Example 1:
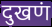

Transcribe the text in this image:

दुखणं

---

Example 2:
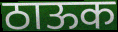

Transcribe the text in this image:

ठाऊक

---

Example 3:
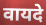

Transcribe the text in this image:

वायदे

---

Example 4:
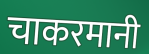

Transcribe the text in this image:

चाकरमानी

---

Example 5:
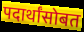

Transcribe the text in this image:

पदार्थांसोबत